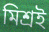
মিশ্ৰই